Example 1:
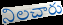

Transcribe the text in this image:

నిలచారు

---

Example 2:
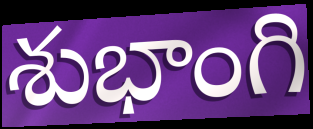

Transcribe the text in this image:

శుభాంగి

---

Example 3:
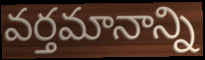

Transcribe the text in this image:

వర్తమానాన్ని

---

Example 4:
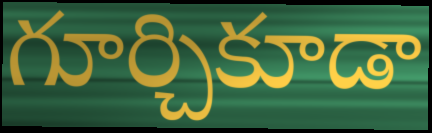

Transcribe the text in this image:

గూర్చికూడా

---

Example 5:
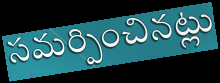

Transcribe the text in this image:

సమర్పించినట్లు